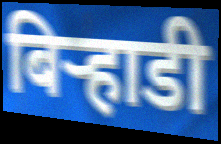
बिर्‍हाडी